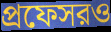
প্রফেসরও